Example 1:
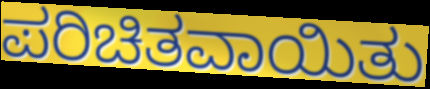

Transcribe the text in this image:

ಪರಿಚಿತವಾಯಿತು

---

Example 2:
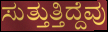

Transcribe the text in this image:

ಸುತ್ತುತ್ತಿದ್ದೆವು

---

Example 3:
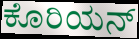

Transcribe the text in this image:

ಕೊರಿಯನ್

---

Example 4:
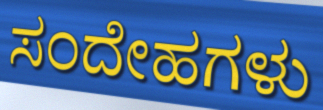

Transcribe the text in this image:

ಸಂದೇಹಗಳು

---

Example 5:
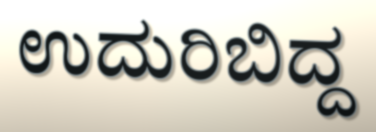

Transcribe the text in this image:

ಉದುರಿಬಿದ್ದ